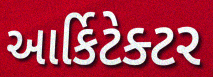
આર્કિટેક્ટર